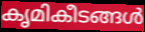
കൃമികീടങ്ങൾ